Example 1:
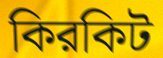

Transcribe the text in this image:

কিরকিট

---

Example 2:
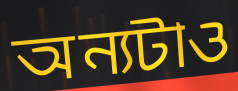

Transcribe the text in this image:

অন্যটাও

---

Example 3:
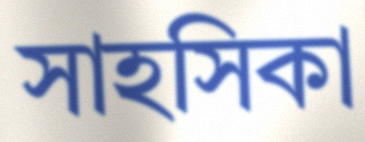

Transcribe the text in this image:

সাহসিকা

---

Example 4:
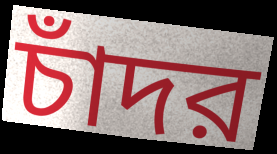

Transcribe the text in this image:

চাঁদর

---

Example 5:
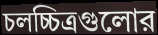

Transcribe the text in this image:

চলচ্চিত্রগুলোর